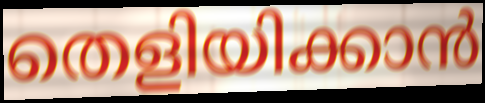
തെളിയിക്കാൻ